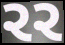
રર